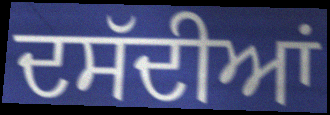
ਦਸੱਦੀਆਂ